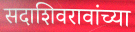
सदाशिवरावांच्या